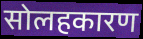
सोलहकारण